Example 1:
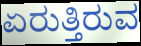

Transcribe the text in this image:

ಏರುತ್ತಿರುವ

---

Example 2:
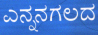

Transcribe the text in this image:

ಎನ್ನನಗಲದ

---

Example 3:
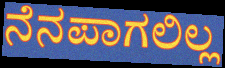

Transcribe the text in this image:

ನೆನಪಾಗಲಿಲ್ಲ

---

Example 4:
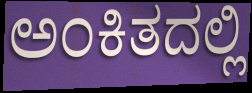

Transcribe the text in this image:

ಅಂಕಿತದಲ್ಲಿ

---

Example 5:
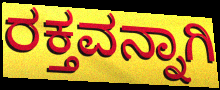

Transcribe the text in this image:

ರಕ್ತವನ್ನಾಗಿ